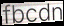
fbcdn